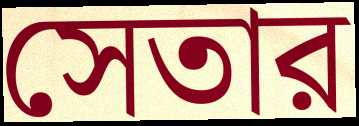
সেতার